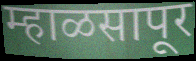
म्हाळसापूर